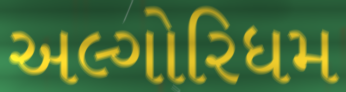
અલ્ગોરિધમ